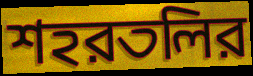
শহরতলির